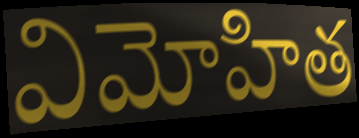
విమోహిత